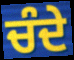
ਚੰਦੇ